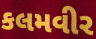
કલમવીર